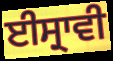
ਈਸ੍ਰਾਵੀ